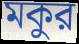
মকুর